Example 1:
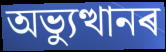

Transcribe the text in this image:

অভ্যুত্থানৰ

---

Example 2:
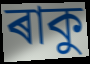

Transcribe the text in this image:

ৰাকু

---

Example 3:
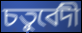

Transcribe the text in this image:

চতুৰ্বেদী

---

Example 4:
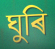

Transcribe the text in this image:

ঘুৰি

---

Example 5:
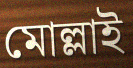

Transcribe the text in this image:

মোল্লাই